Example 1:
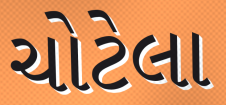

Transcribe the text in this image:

ચોટેલા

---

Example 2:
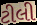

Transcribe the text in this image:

ટીલી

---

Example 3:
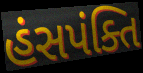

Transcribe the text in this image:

હંસપંક્તિ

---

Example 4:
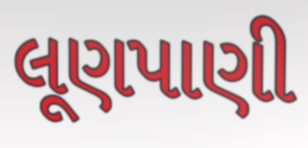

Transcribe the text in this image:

લૂણપાણી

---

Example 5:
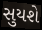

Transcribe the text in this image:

સુયશે